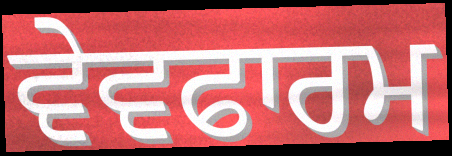
ਵੇਵਫਾਰਮ